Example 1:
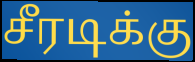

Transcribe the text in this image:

சீரடிக்கு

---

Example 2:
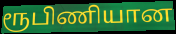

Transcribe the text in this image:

ரூபிணியான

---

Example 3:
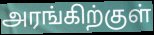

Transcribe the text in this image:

அரங்கிற்குள்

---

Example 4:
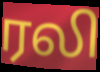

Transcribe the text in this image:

ரலி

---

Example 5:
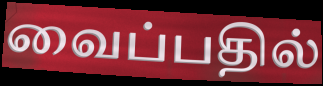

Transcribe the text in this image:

வைப்பதில்